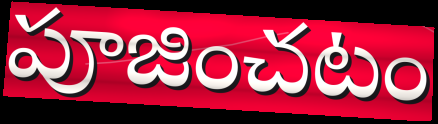
పూజించటం